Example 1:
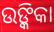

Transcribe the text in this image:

ଉଙ୍କିକା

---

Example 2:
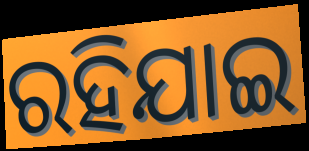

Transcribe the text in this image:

ରହିଯାଇ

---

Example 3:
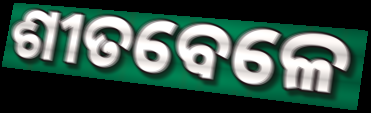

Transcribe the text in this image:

ଶୀତବେଳେ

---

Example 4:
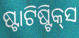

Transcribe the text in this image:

ଷ୍ଟାଟିଷ୍ଟିକ୍‍ସ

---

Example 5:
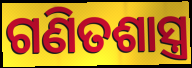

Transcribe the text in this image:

ଗଣିତଶାସ୍ତ୍ର